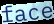
face